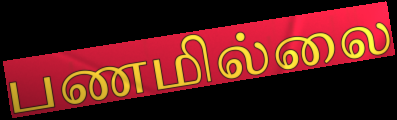
பணமில்லை